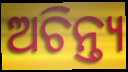
ଅଚିନ୍ତ୍ଯ